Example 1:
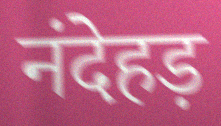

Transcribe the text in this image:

नंदेहड़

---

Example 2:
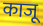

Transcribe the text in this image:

काजू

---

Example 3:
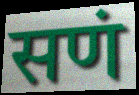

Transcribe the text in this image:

सणं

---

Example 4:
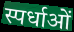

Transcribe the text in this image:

स्पर्धाओं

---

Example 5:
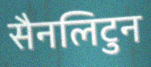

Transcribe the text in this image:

सैनलिटुन